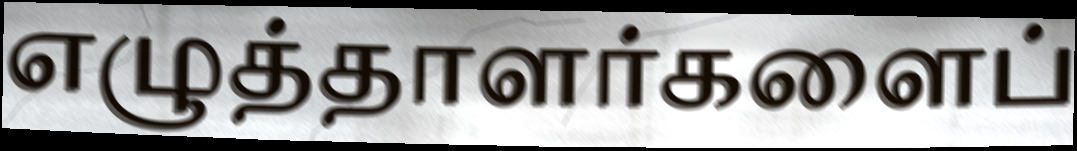
எழுத்தாளர்களைப்